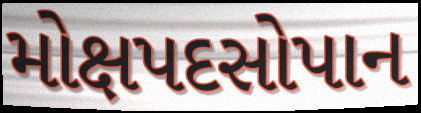
મોક્ષપદસોપાન